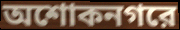
অশোকনগরে